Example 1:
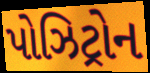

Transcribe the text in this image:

પોઝિટ્રોન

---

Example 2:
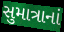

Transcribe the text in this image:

સુમાત્રાનાં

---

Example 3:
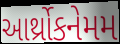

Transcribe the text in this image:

આર્થ્રોકનેમમ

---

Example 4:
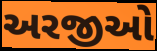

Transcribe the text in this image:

અરજીઓ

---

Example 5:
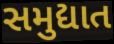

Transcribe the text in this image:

સમુદ્યાત